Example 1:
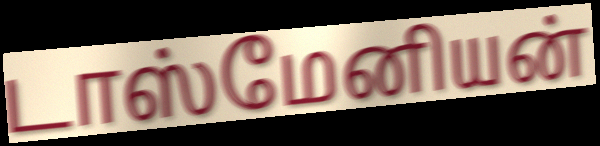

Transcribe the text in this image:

டாஸ்மேனியன்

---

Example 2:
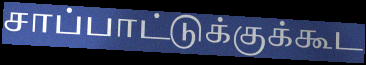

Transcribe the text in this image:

சாப்பாட்டுக்குக்கூட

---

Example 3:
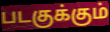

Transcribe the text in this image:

படகுக்கும்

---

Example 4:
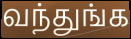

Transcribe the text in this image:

வந்துங்க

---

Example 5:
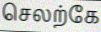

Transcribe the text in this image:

செலற்கே